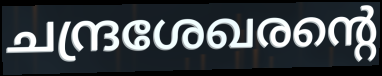
ചന്ദ്രശേഖരന്റെ